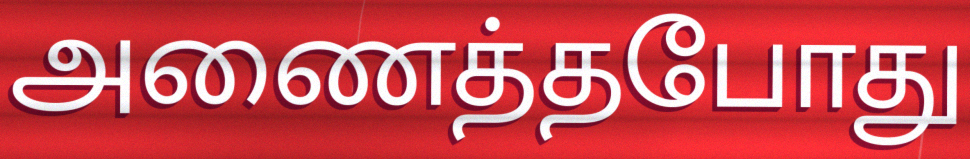
அணைத்தபோது